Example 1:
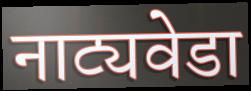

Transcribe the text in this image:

नाट्यवेडा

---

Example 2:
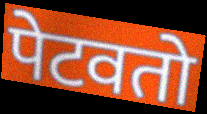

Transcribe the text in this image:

पेटवतो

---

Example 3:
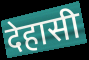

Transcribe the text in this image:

देहासी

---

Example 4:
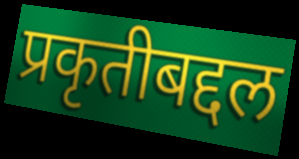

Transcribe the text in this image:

प्रकृतीबद्दल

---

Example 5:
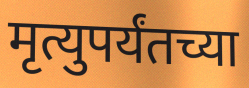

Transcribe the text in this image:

मृत्युपर्यंतच्या